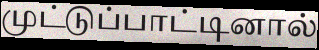
முட்டுப்பாட்டினால்